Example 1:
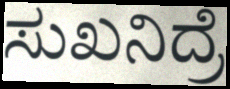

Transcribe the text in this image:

ಸುಖನಿದ್ರೆ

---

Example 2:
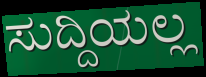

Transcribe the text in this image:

ಸುದ್ದಿಯಲ್ಲ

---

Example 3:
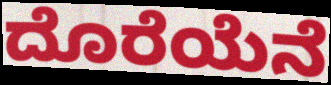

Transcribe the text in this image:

ದೊರೆಯೆನೆ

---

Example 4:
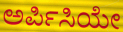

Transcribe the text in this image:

ಅರ್ಪಿಸಿಯೇ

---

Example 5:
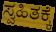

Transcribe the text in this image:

ಸ್ವಹಿತಕ್ಕೆ